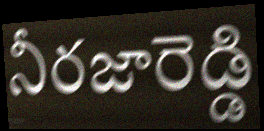
నీరజారెడ్డి